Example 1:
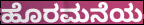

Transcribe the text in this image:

ಹೊರಮನೆಯ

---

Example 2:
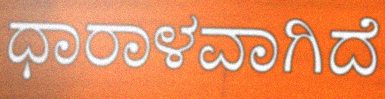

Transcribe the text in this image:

ಧಾರಾಳವಾಗಿದೆ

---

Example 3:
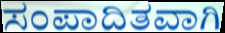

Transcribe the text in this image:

ಸಂಪಾದಿತವಾಗಿ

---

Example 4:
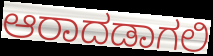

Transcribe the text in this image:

ಆರಾದಡಾಗಲಿ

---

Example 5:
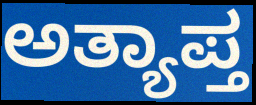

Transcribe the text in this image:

ಅತ್ಯಾಪ್ತ